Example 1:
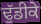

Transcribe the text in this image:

ਢੁੱਡੀਕੇ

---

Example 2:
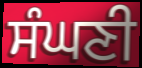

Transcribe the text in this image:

ਸੰਘਣੀ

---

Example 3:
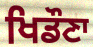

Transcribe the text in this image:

ਖਿਡੌਣਾ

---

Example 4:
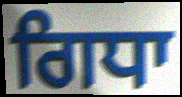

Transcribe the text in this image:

ਗਿਧਾ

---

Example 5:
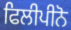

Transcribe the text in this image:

ਫਿਲੀਪੀਨੋ